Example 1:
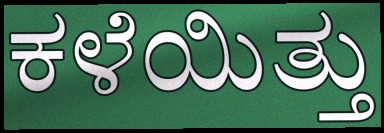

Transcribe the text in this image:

ಕಳೆಯಿತ್ತು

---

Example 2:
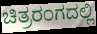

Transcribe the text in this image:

ಚಿತ್ರರಂಗದಲ್ಲಿ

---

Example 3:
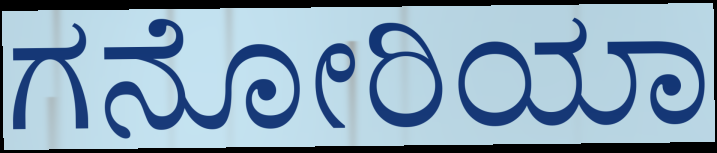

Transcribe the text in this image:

ಗನೋರಿಯಾ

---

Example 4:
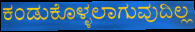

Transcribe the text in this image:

ಕಂಡುಕೊಳ್ಳಲಾಗುವುದಿಲ್ಲ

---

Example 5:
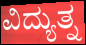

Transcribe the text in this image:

ವಿದ್ಯುತ್ನ